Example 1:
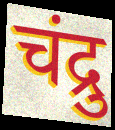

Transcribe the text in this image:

चंद्रु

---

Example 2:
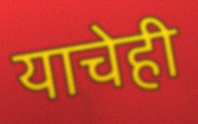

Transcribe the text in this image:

याचेही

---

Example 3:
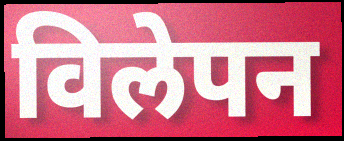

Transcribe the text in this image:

विलेपन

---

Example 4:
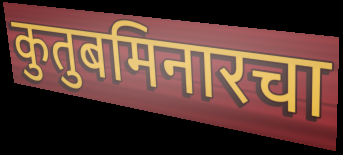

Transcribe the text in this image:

कुतुबमिनारचा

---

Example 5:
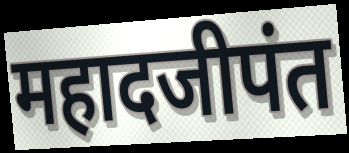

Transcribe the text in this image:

महादजीपंत